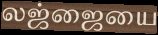
லஜ்ஜையை